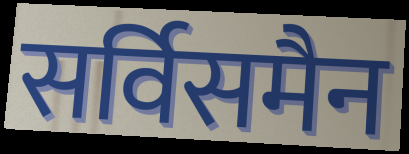
सर्विसमैन